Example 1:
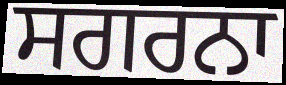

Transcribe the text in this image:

ਸਗਰਨਾ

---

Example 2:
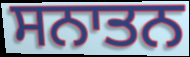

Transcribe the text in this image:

ਸਨਾਤਨ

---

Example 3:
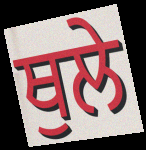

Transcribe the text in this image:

ਥੁਲੇ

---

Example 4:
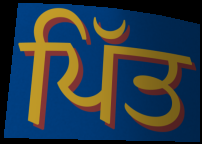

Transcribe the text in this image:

ਪਿੱਤ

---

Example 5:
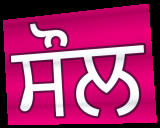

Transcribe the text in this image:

ਸੌਲ